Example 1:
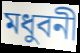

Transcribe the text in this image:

মধুবনী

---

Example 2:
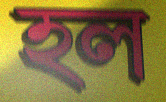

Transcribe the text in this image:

হল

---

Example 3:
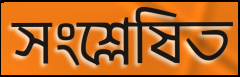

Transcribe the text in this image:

সংশ্লেষিত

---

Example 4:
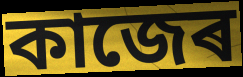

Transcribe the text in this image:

কাজেৰ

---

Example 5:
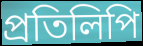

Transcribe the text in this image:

প্ৰতিলিপি